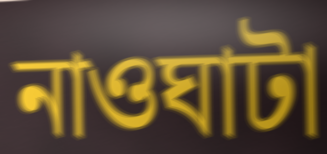
নাওঘাটা